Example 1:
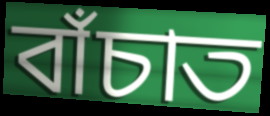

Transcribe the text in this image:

বাঁচাত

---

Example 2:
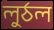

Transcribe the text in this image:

লুঠল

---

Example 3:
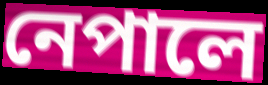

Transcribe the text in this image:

নেপালে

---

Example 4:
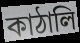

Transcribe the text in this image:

কাঠালি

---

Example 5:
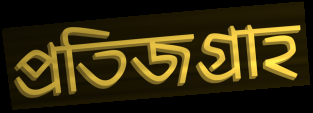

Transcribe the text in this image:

প্রতিজগ্রাহ